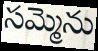
సమ్మెను